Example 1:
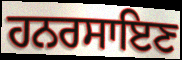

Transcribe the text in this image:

ਹਨਰਸਾਇਣ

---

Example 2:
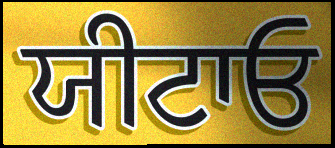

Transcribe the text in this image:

ਯੀਟਾਓ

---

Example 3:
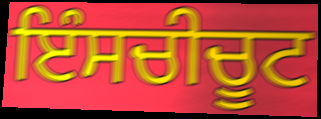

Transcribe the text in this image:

ਇੰਸਚੀਚੂਟ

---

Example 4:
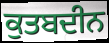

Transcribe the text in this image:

ਕੁਤਬਦੀਨ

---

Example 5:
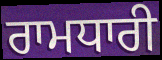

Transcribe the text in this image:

ਰਾਮਧਾਰੀ